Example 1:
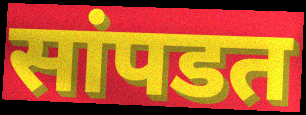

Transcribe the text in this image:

सांपडत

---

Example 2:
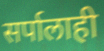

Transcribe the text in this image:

सर्पालाही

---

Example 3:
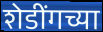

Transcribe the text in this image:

शेडींगच्या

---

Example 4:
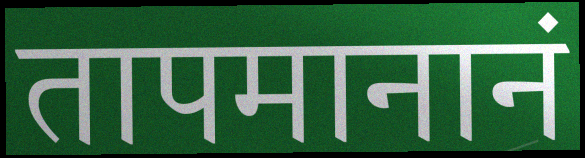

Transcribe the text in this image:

तापमानानं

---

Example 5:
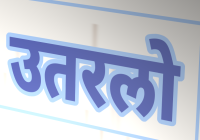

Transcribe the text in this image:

उतरलो